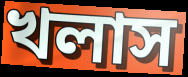
খলাস